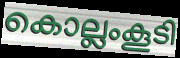
കൊല്ലംകൂടി